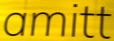
amitt